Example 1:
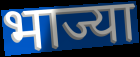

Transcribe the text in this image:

भाज्या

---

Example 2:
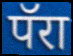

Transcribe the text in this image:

पॅरा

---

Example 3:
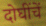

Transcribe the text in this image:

दोघींचें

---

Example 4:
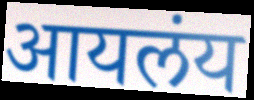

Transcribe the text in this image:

आयलंय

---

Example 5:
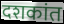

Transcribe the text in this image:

दशकांत